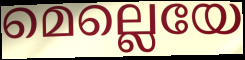
മെല്ലെയേ